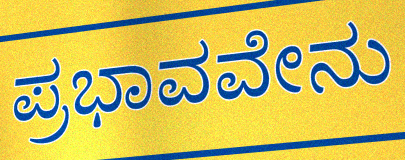
ಪ್ರಭಾವವೇನು